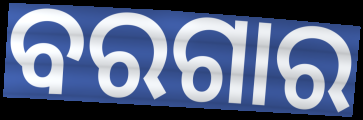
ବରଗାର